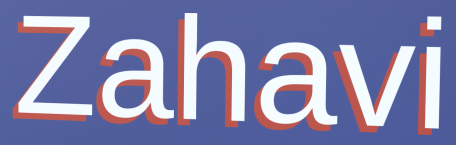
Zahavi